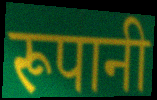
रूपानी